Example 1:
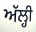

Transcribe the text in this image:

ਅੱਲ੍ਹੀ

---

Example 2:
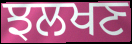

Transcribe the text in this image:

ਝਲਖਣ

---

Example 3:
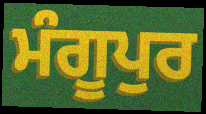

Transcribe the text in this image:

ਮੰਗੂਪੁਰ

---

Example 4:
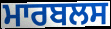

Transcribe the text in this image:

ਮਾਰਬਲਸ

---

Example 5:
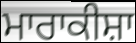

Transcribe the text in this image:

ਮਾਰਾਕੀਸ਼ਾ